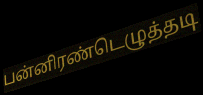
பன்னிரண்டெழுத்தடி